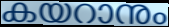
കയറാനും